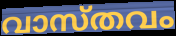
വാസ്തവം